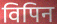
विपिन